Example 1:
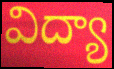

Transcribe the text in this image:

విద్యా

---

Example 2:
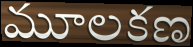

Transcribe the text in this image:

మూలకణ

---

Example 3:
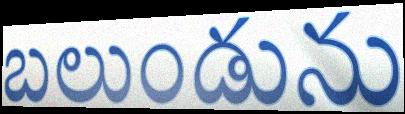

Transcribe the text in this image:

బలుండును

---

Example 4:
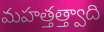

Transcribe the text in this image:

మహత్తత్త్వాది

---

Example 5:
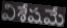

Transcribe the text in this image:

విశేషమే